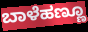
ಬಾಳೆಹಣ್ಣೂ